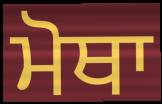
ਮੋਥਾ